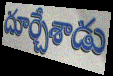
దూర్చేశాడు